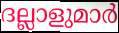
ദല്ലാളുമാർ